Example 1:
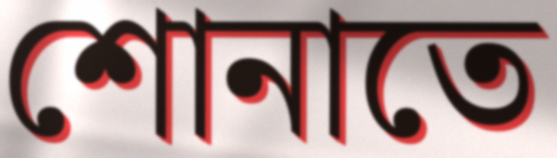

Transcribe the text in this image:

শোনাতে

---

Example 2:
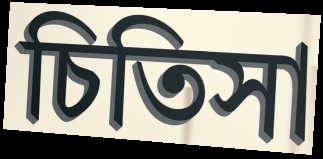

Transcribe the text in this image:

চিতিসা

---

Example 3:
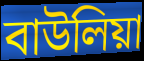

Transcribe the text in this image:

বাউলিয়া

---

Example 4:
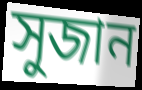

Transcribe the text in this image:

সুজান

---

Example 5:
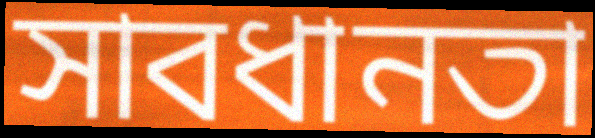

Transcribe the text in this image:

সাবধানতা